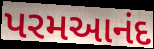
પરમઆનંદ